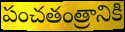
పంచతంత్రానికి